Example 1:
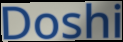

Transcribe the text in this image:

Doshi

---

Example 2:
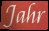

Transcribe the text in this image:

Jahr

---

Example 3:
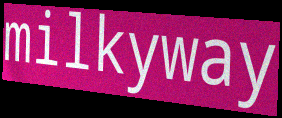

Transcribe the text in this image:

milkyway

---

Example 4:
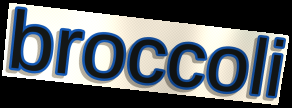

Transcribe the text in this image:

broccoli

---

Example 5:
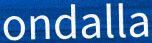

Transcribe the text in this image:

ondalla